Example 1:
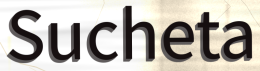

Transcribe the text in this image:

Sucheta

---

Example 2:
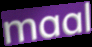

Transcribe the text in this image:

maal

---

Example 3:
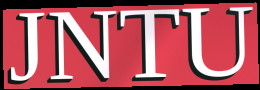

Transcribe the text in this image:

JNTU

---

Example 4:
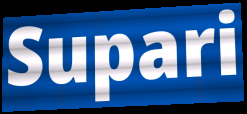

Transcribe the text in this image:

Supari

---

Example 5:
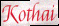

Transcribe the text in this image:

Kothai